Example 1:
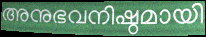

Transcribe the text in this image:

അനുഭവനിഷ്ഠമായി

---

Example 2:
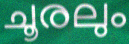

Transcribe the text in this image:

ചൂരലും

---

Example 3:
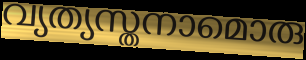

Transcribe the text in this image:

വ്യത്യസ്തനാമൊരു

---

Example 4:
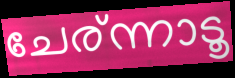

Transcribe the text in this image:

ചേര്ന്നാടൂ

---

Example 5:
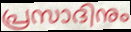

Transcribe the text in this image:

പ്രസാദിനും